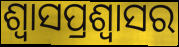
ଶ୍ଵାସପ୍ରଶ୍ଵାସର